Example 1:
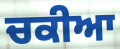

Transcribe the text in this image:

ਚਕੀਆ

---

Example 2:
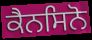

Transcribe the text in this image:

ਕੈਨਸਿਨੋ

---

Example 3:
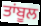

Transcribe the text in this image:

ਤਾਂਬੂਲ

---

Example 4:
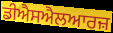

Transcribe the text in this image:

ਡੀਐਸਐਲਆਰਜ਼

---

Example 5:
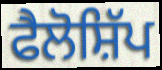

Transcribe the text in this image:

ਫੈਲੋਸ਼ਿੱਪ